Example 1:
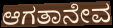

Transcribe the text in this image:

ಆಗತಾನೇವ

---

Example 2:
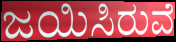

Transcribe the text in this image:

ಜಯಿಸಿರುವೆ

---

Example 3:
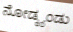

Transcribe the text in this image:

ನೋಡ್ಕ್ಯಂಡು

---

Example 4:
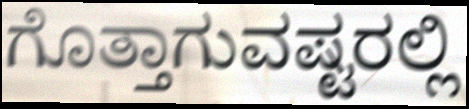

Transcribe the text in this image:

ಗೊತ್ತಾಗುವಷ್ಟರಲ್ಲಿ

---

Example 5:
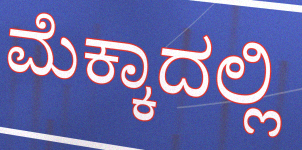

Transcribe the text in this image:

ಮೆಕ್ಕಾದಲ್ಲಿ